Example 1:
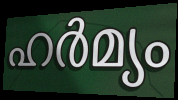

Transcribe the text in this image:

ഹർമ്യം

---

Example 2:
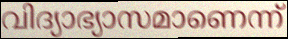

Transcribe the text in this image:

വിദ്യാഭ്യാസമാണെന്ന്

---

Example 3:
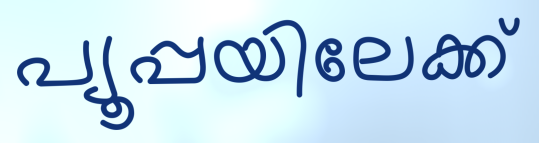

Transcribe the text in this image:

പ്യൂപ്പയിലേക്ക്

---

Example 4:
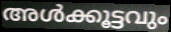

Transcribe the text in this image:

അൾക്കൂട്ടവും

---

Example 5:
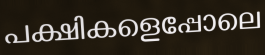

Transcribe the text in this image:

പക്ഷികളെപ്പോലെ